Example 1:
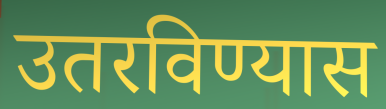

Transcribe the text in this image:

उतरविण्यास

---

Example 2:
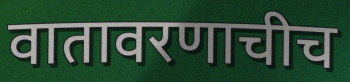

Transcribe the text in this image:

वातावरणाचीच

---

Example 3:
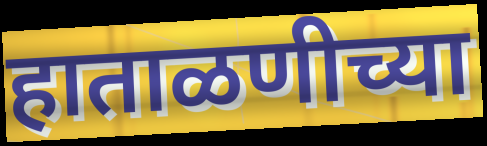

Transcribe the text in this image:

हाताळणीच्या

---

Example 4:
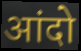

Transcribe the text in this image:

आंदो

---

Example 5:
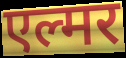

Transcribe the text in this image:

एल्मर